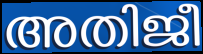
അതിജീ